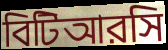
বিটিআরসি